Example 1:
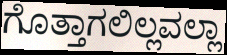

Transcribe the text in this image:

ಗೊತ್ತಾಗಲಿಲ್ಲವಲ್ಲಾ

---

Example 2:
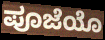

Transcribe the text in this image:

ಪೂಜೆಯೊ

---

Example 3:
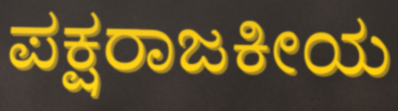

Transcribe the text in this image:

ಪಕ್ಷರಾಜಕೀಯ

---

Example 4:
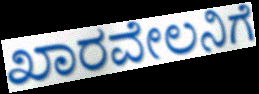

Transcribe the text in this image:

ಖಾರವೇಲನಿಗೆ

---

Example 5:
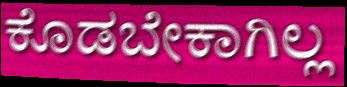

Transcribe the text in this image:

ಕೊಡಬೇಕಾಗಿಲ್ಲ